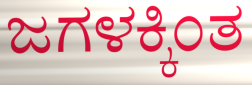
ಜಗಳಕ್ಕಿಂತ